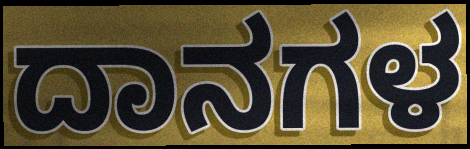
ದಾನಗಳ